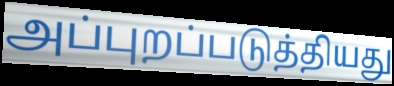
அப்புறப்படுத்தியது